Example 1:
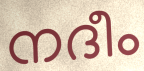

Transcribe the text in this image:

നദീം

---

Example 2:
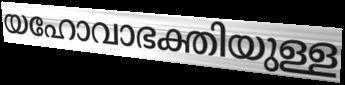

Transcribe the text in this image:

യഹോവാഭക്തിയുള്ള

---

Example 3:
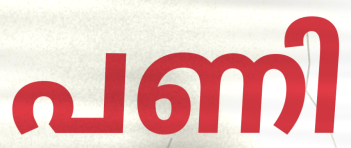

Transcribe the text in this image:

പണി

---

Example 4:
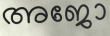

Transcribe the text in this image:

അജോ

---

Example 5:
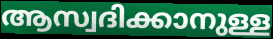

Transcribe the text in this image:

ആസ്വദിക്കാനുള്ള